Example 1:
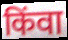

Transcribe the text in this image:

किंवा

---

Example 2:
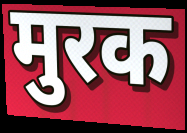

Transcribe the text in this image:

मुरक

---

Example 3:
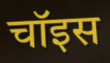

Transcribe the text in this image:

चॉइस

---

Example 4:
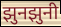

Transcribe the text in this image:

झुनझुनी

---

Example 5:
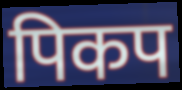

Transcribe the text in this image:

पिकप